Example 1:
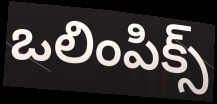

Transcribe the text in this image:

ఒలింపిక్స్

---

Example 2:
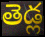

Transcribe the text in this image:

తెడ్ల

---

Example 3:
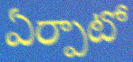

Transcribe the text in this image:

ఏర్పాటో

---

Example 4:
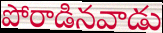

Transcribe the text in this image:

పోరాడినవాడు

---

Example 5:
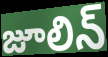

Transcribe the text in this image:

జూలిన్